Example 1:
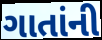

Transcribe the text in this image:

ગાતાંની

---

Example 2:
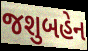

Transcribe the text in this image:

જશુબહેન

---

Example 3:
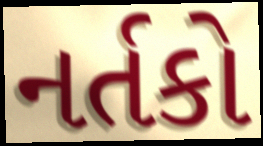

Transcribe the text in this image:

નર્તકો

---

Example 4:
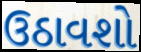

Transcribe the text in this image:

ઉઠાવશો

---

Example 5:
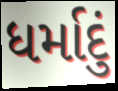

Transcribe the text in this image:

ધર્માદું